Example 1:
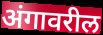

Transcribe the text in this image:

अंगावरील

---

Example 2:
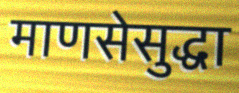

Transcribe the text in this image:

माणसेसुद्धा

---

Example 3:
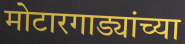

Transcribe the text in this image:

मोटारगाड्यांच्या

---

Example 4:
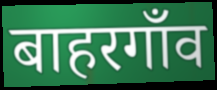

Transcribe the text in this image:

बाहरगाँव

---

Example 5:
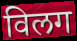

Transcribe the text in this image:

विलग